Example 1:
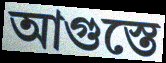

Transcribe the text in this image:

আগুস্তে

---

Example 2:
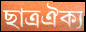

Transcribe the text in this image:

ছাত্রঐক্য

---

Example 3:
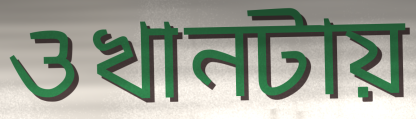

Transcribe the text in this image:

ওখানটায়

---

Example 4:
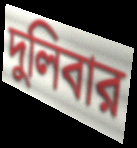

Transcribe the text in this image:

দুলিবার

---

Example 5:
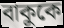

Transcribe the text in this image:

বাকুকে